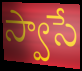
స్వాసే